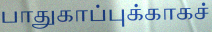
பாதுகாப்புக்காகச்